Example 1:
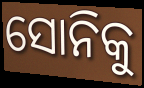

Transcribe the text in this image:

ସୋନିକୁ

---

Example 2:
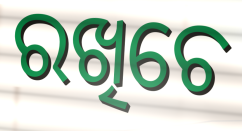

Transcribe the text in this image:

ରଖିଚେ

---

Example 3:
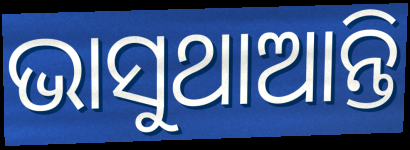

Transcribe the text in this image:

ଭାସୁଥାଆନ୍ତି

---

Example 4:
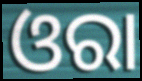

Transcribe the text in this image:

ଓରା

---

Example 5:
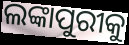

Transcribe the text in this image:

ଲଙ୍କାପୁରୀକୁ